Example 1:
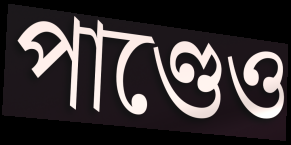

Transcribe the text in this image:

পাণ্ডেও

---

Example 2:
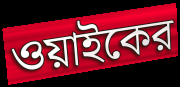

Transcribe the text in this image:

ওয়াইকের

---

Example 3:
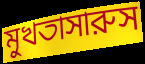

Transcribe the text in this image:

মুখতাসারুস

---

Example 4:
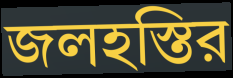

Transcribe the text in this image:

জলহস্তির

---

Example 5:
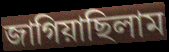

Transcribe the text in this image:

জাগিয়াছিলাম